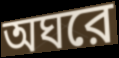
অঘরে